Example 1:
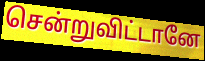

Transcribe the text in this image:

சென்றுவிட்டானே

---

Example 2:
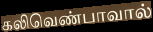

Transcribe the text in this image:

கலிவெண்பாவால்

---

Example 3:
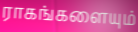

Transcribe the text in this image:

ராகங்களையும்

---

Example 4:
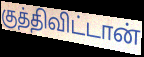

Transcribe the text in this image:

குத்திவிட்டான்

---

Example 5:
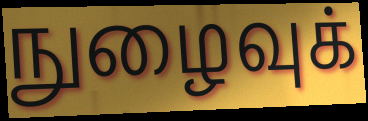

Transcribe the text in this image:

நுழைவுக்